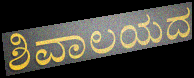
ಶಿವಾಲಯದ